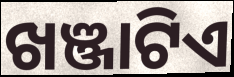
ଖଞ୍ଜାଟିଏ